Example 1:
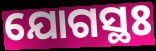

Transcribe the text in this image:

ଯୋଗସ୍ଥଃ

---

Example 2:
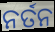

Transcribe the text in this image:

ନର୍ତନ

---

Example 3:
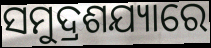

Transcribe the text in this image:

ସମୁଦ୍ରଶଯ୍ୟାରେ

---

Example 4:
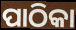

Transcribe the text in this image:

ପାଠିକା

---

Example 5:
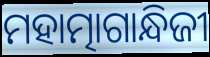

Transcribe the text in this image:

ମହାତ୍ମାଗାନ୍ଧିଜୀ